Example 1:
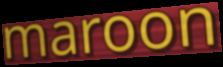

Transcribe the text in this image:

maroon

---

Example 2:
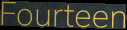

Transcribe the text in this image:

Fourteen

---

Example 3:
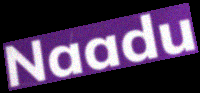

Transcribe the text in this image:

Naadu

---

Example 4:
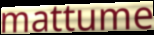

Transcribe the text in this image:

mattume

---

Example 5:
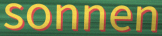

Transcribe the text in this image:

sonnen